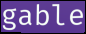
gable